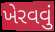
ખેરવવું